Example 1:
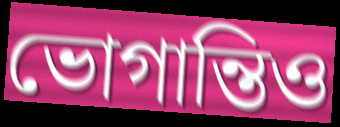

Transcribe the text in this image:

ভোগান্তিও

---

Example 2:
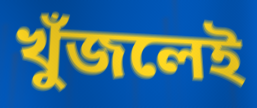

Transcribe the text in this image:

খুঁজলেই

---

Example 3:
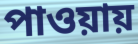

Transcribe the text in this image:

পাওয়ায়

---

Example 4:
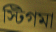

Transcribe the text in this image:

স্টিগমা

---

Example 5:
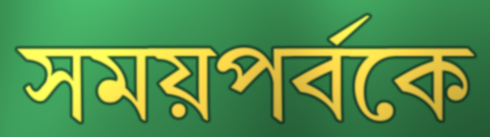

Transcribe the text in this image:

সময়পর্বকে